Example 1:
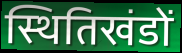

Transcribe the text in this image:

स्थितिखंडों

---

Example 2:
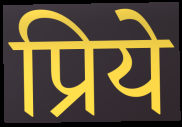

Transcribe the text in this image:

प्रिये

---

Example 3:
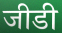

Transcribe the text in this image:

जीडी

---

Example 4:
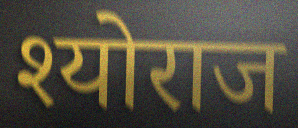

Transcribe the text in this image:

श्योराज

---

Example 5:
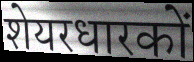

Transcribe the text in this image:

शेयरधारकों